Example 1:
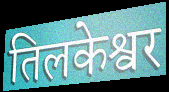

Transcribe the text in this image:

तिलकेश्वर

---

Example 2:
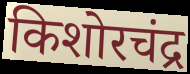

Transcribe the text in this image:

किशोरचंद्र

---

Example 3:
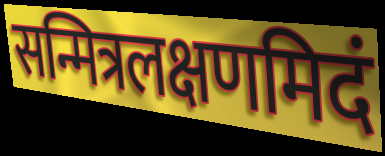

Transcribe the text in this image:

सन्मित्रलक्षणमिदं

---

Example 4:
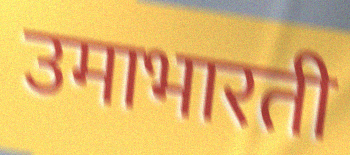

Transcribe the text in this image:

उमाभारती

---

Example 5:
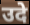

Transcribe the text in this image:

उदे